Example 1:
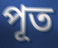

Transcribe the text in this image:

পূত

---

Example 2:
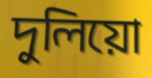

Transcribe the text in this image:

দুলিয়ো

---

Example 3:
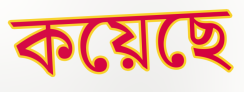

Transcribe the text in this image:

কয়েছে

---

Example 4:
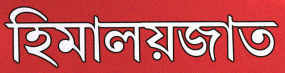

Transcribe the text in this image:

হিমালয়জাত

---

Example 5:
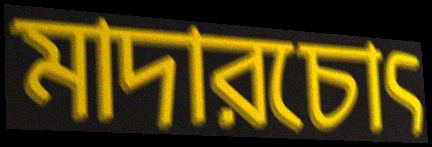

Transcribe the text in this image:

মাদারচোৎ